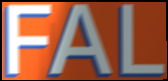
FAL